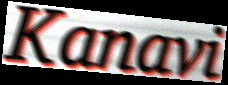
Kanavi